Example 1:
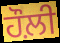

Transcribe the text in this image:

ਹੌਲ਼ੀ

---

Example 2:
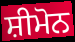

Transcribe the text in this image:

ਸ਼ੀਮੋਨ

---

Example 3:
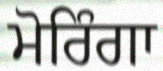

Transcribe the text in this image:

ਮੋਰਿੰਗਾ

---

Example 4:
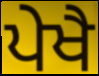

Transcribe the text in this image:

ਪੇਖੈ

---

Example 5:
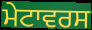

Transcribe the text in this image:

ਮੇਟਾਵਰਸ